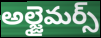
అల్జైమర్స్